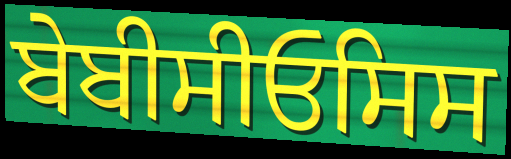
ਬੇਬੀਸੀਓਸਿਸ